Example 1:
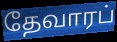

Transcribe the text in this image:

தேவாரப்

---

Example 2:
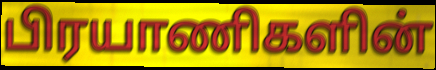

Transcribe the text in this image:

பிரயாணிகளின்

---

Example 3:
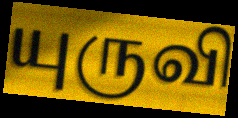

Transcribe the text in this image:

யுருவி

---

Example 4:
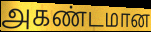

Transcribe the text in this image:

அகண்டமான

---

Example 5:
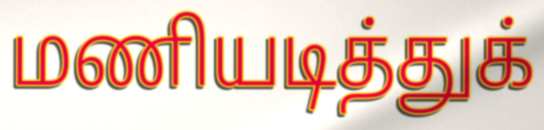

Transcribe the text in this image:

மணியடித்துக்